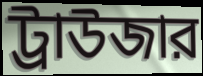
ট্রাউজার